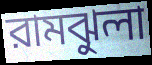
রামঝুলা